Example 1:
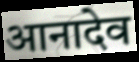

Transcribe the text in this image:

आनादेव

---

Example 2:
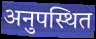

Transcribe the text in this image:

अनुपस्थित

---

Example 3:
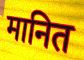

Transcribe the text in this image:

मानित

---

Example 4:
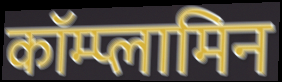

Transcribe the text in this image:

कॉम्प्लामिन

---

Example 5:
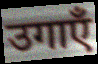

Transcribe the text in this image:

उगाएँ